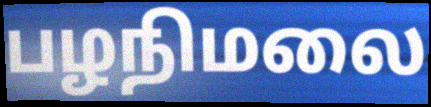
பழநிமலை